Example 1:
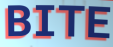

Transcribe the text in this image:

BITE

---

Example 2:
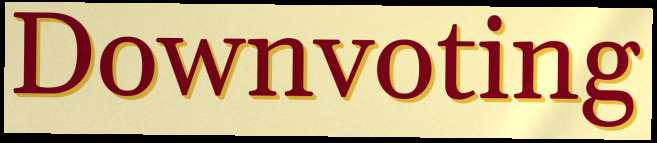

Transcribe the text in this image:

Downvoting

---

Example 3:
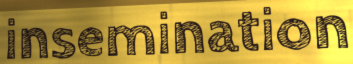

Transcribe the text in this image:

insemination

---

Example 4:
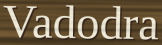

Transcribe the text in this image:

Vadodra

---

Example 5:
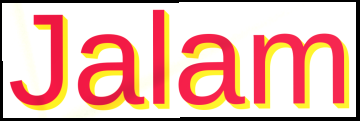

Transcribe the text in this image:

Jalam